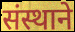
संस्थाने